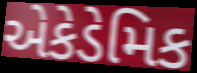
એકેડેમિક